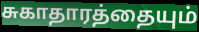
சுகாதாரத்தையும்